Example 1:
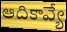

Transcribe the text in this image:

ఆదికావ్యే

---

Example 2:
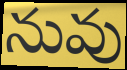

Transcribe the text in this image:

నువు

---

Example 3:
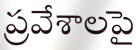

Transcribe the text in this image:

ప్రవేశాలపై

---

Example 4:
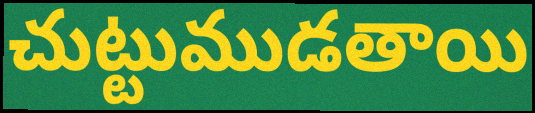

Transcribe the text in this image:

చుట్టుముడతాయి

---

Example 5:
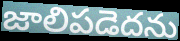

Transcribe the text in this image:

జాలిపడెదను